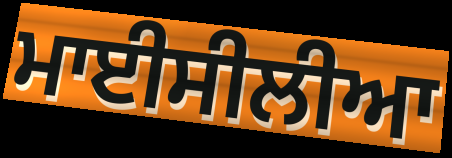
ਮਾਈਸੀਲੀਆ